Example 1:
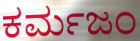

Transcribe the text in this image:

ಕರ್ಮಜಂ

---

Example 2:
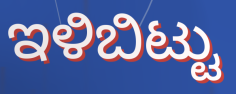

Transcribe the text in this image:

ಇಳಿಬಿಟ್ಟು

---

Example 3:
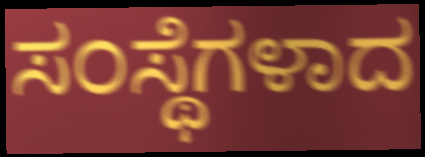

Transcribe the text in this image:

ಸಂಸ್ಥೆಗಳಾದ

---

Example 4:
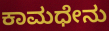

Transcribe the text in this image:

ಕಾಮಧೇನು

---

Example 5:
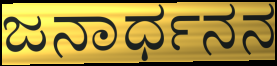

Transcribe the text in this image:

ಜನಾರ್ಧನನ